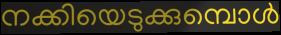
നക്കിയെടുക്കുമ്പൊൾ